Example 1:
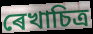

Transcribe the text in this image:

ৰেখাচিত্ৰ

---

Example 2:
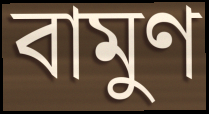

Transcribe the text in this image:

বামুণ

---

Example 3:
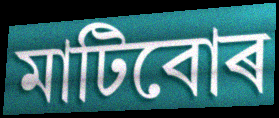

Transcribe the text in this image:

মাটিবোৰ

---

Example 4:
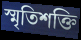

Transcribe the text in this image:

স্মৃতিশক্তি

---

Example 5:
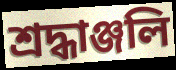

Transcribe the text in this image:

শ্ৰদ্ধাঞ্জলি